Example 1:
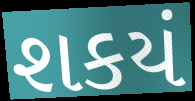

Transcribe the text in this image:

શકયં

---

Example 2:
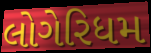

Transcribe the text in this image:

લોગેરિધમ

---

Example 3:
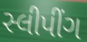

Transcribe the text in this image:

સ્લીપીંગ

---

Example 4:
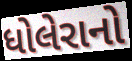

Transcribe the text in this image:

ધોલેરાનો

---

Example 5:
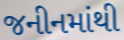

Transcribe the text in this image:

જનીનમાંથી